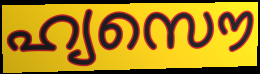
ഹ്യസൌ